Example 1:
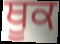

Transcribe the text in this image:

ਥੂਕ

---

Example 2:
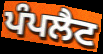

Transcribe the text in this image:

ਪੰਪਲੈਟ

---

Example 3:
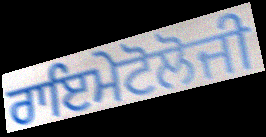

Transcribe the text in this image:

ਰਾਇਮੇਟੋਲੋਜੀ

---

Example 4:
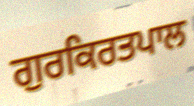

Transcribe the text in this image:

ਗੁਰਕਿਰਤਪਾਲ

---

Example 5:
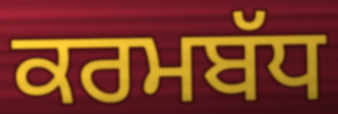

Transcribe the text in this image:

ਕਰਮਬੱਧ